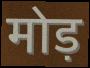
मोड़